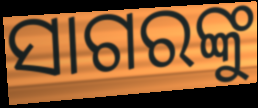
ସାଗରଙ୍କୁ